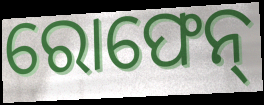
ରୋଫେନ୍